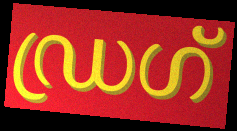
ഡ്രഗ്